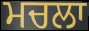
ਮਚਲਾ